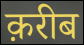
क़रीब